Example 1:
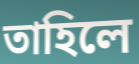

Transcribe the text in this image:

তাহিলে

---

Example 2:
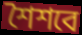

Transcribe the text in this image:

শৈশবে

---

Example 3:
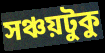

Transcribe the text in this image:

সঞ্চয়টুকু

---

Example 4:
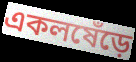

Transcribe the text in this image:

একলষেঁড়ে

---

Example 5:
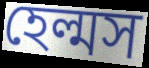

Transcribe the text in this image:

হেল্মস